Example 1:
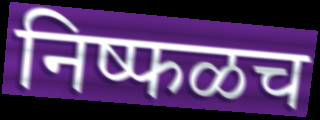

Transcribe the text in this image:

निष्फळच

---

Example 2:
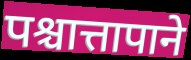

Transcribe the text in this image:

पश्चात्तापाने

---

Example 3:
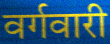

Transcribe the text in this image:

वर्गवारी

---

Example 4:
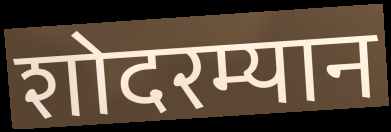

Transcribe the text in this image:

शोदरम्यान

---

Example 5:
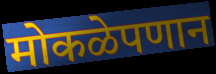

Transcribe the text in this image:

मोकळेपणान